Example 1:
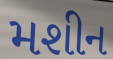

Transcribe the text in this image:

મશીન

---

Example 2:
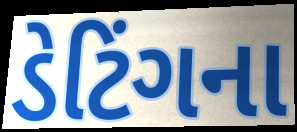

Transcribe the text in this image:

ડેટિંગના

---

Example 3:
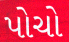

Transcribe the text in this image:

પોચો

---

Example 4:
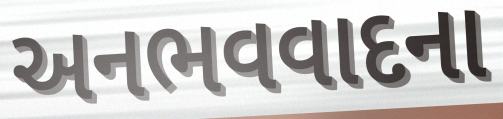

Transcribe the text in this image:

અનભવવાદના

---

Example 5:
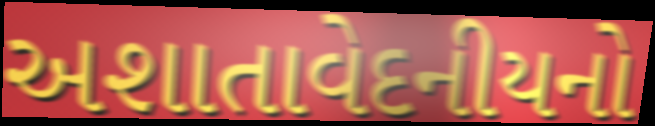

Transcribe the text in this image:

અશાતાવેદનીયનો